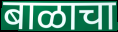
बाळाचा